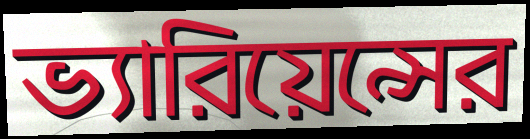
ভ্যারিয়েন্সের